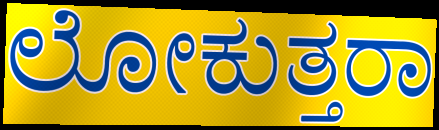
ಲೋಕುತ್ತರಾ